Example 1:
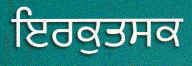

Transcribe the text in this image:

ਇਰਕੁਤਸਕ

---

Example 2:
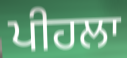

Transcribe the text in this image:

ਪੀਹਲਾ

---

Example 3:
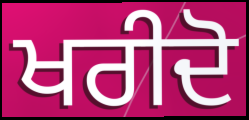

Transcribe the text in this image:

ਖਰੀਦੋ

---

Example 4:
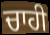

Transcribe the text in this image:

ਚਾਹੀ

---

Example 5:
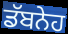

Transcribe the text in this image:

ਡੱਬਨੇਹ